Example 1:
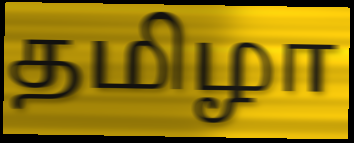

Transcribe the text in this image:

தமிழா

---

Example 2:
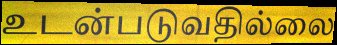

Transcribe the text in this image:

உடன்படுவதில்லை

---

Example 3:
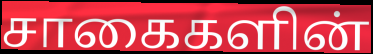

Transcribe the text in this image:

சாகைகளின்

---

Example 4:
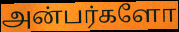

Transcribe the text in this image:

அன்பர்களோ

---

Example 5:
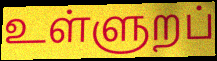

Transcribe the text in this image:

உள்ளுறப்